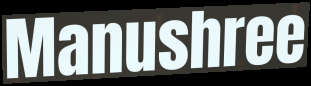
Manushree